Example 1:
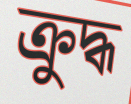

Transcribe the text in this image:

ক্ৰুদ্ধ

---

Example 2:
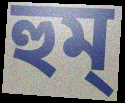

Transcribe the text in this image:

হুম্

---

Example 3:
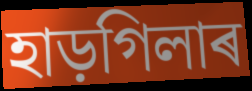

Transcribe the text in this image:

হাড়গিলাৰ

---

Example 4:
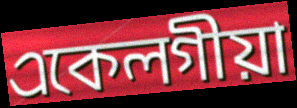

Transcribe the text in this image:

একেলগীয়া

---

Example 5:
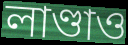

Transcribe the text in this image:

লাণ্ডাও